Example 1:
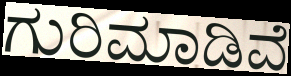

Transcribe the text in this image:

ಗುರಿಮಾಡಿವೆ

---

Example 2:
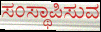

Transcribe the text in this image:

ಸಂಸ್ಥಾಪಿಸುವ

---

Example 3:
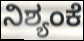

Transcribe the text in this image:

ನಿಶ್ಯಂಕೆ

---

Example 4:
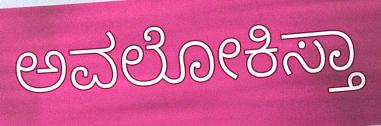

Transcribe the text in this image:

ಅವಲೋಕಿಸ್ತಾ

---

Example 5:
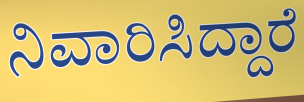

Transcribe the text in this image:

ನಿವಾರಿಸಿದ್ದಾರೆ